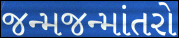
જન્મજન્માંતરો